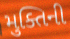
મુક્તિની